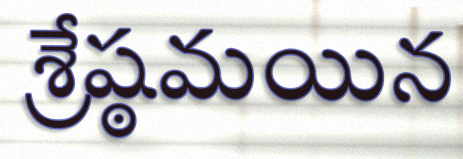
శ్రేష్ఠమయిన